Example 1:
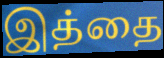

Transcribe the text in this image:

இத்தை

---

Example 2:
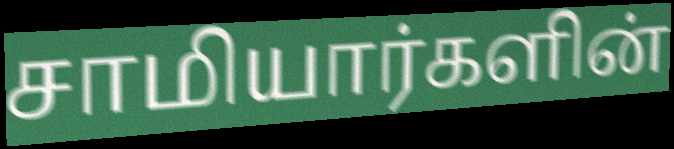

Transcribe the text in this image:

சாமியார்களின்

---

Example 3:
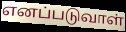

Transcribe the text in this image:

எனப்படுவாள்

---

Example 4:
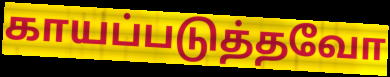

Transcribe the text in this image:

காயப்படுத்தவோ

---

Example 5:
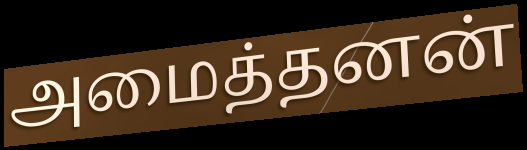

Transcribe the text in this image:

அமைத்தனன்